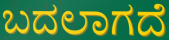
ಬದಲಾಗದೆ